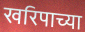
खरिपाच्या